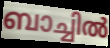
ബാച്ചിൽ